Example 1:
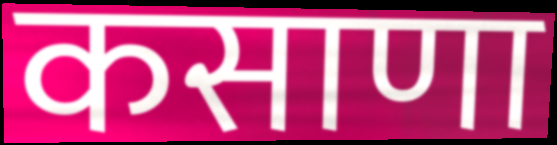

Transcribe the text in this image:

कसाणा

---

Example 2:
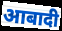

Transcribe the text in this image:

आबादी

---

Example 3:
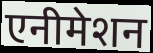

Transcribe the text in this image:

एनीमेशन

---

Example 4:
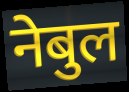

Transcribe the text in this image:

नेबुल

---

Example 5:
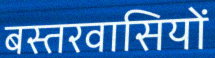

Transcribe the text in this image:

बस्तरवासियों